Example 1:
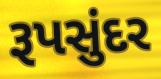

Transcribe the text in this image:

રૂપસુંદર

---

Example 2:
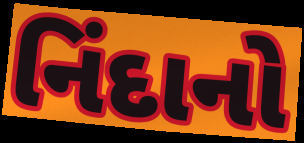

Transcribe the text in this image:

નિંદાનો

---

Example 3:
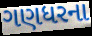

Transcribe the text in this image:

ગણધરના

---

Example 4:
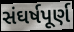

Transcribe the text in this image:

સંઘર્ષપૂર્ણ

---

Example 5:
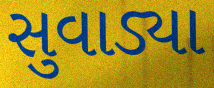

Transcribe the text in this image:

સુવાડ્યા